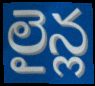
లైన్ల